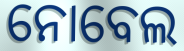
ନୋବେଲ